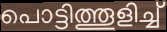
പൊട്ടിത്തൂളിച്ച്